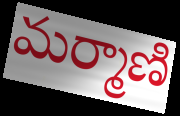
మర్మాణి